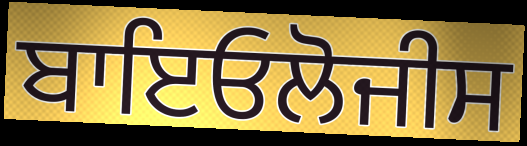
ਬਾਇਓਲੋਜੀਸ